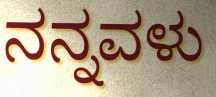
ನನ್ನವಳು